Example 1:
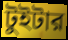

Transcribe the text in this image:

টুইটার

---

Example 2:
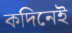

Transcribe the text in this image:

কদিনেই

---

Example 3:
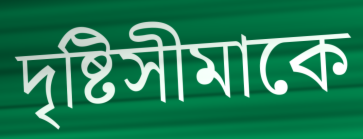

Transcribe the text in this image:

দৃষ্টিসীমাকে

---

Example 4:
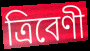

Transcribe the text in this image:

ত্রিবেণী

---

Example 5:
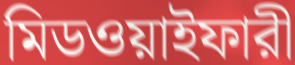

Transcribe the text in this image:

মিডওয়াইফারী